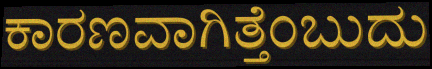
ಕಾರಣವಾಗಿತ್ತೆಂಬುದು